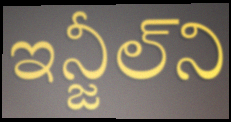
ఇన్జీల్‌ని